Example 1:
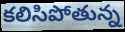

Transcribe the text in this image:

కలిసిపోతున్న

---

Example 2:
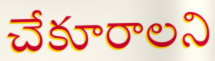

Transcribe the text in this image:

చేకూరాలని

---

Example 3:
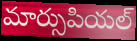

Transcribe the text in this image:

మార్సుపియల్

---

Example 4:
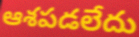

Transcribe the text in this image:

ఆశపడలేదు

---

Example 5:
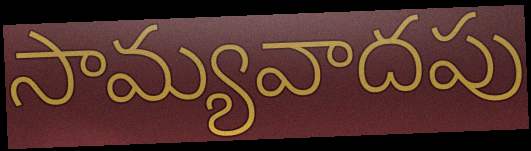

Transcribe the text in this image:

సామ్యవాదపు